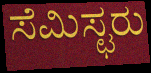
ಸೆಮಿಸ್ಟರು